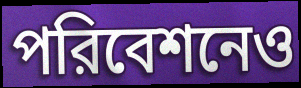
পরিবেশনেও